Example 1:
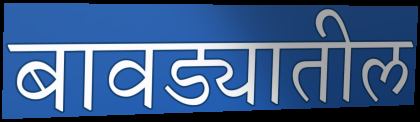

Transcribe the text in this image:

बावड्यातील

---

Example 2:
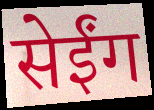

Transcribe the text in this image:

सेईंग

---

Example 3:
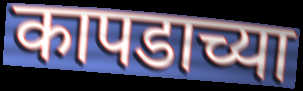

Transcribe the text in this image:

कापडाच्या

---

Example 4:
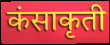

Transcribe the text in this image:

कंसाकृती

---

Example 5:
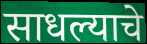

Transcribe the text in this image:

साधल्याचे